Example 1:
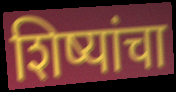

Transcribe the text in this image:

शिष्यांचा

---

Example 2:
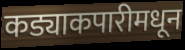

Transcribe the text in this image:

कड्याकपारीमधून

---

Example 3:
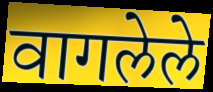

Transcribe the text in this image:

वागलेले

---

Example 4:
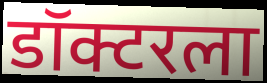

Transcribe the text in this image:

डॉक्टरला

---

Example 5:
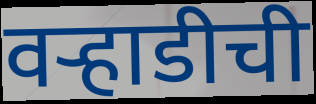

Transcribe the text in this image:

वऱ्हाडीची